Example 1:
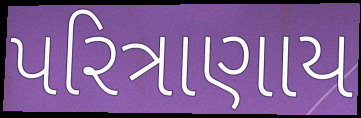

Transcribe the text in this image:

પરિત્રાણાય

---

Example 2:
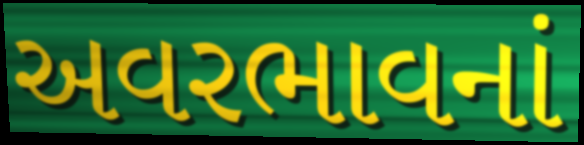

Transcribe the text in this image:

અવરભાવનાં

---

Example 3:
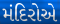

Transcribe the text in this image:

મંદિરોએ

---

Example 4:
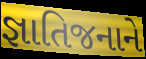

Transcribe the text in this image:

જ્ઞાતિજનાને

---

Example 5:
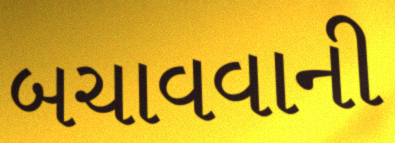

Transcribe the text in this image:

બચાવવાની